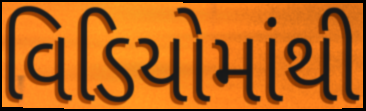
વિડિયોમાંથી